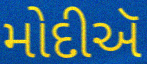
મોદીઍ